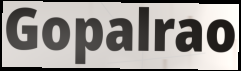
Gopalrao